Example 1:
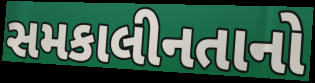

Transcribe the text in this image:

સમકાલીનતાનો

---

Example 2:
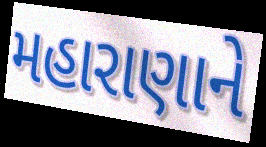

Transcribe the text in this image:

મહારાણાને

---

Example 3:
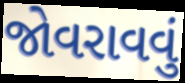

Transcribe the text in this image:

જોવરાવવું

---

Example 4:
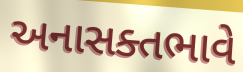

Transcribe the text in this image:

અનાસક્તભાવે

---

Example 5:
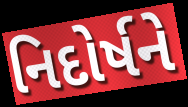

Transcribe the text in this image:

નિદોર્ષને